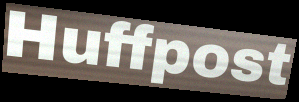
Huffpost